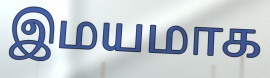
இமயமாக